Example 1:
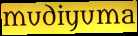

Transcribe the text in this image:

mudiyuma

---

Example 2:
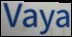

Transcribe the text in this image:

Vaya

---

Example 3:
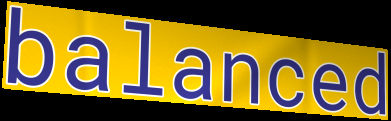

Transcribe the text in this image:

balanced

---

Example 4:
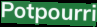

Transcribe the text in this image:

Potpourri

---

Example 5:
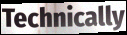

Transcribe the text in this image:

Technically